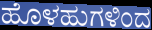
ಹೊಳಹುಗಳಿಂದ